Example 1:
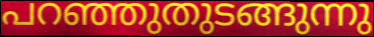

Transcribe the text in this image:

പറഞ്ഞുതുടങ്ങുന്നു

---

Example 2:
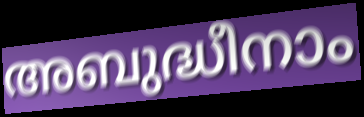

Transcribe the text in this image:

അബുദ്ധീനാം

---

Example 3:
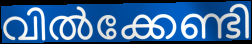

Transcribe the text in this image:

വിൽക്കേണ്ടി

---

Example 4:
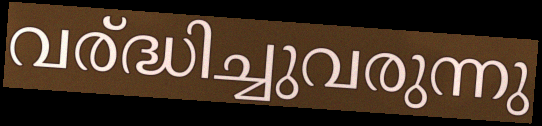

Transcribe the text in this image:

വര്ദ്ധിച്ചുവരുന്നു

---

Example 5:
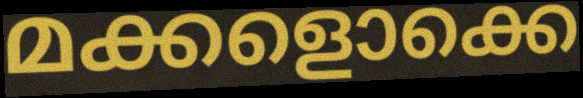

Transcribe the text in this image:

മക്കളൊക്കെ